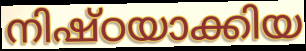
നിഷ്ഠയാക്കിയ